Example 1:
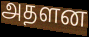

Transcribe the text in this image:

அதளன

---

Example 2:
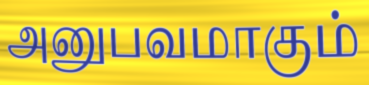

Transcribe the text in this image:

அனுபவமாகும்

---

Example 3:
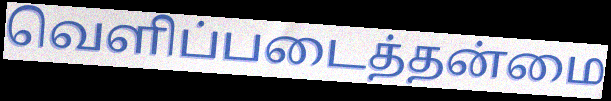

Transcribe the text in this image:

வெளிப்படைத்தன்மை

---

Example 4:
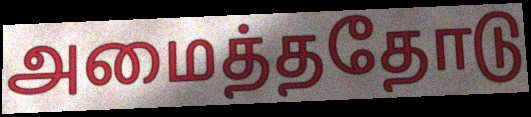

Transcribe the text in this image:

அமைத்ததோடு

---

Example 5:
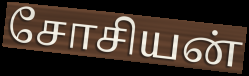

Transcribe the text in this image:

சோசியன்